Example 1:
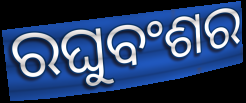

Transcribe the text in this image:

ରଘୁବଂଶର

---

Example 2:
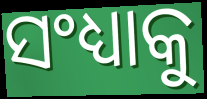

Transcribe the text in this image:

ସଂଧ୍ୟାକୁ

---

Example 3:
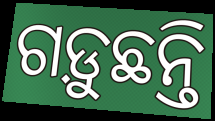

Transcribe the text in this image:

ଗଡ଼ୁଛନ୍ତି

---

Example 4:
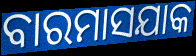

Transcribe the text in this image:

ବାରମାସଯାକ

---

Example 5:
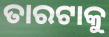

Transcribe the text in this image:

ତାରଟାକୁ